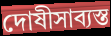
দোষীসাব্যস্ত